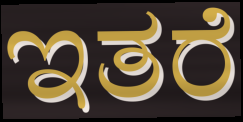
ಇತರೆ